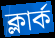
ক্লার্ক